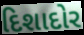
દિશાદોર